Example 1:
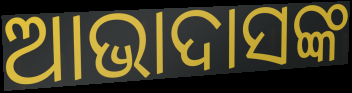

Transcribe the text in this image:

ଆଭାଦାସଙ୍କ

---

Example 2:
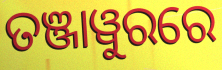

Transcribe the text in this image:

ତଞ୍ଜାୱୁରରେ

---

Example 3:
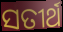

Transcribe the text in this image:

ସତୀର୍ଥ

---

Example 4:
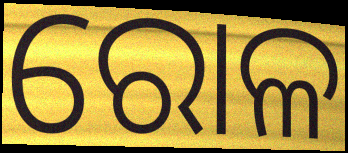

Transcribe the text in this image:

ରୋଳ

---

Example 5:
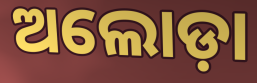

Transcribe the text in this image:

ଅଲୋଡ଼ା